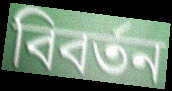
বিবৰ্তন